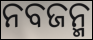
ନବଜନ୍ମ